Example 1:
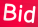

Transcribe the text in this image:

Bid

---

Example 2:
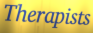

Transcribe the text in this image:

Therapists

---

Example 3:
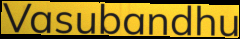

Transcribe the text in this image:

Vasubandhu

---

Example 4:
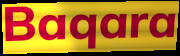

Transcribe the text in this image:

Baqara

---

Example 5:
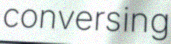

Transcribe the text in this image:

conversing